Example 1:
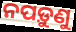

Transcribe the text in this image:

ନପଡ଼ୁଣୁ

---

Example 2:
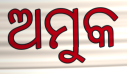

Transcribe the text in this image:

ଅମୁକ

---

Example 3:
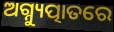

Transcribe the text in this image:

ଅଗ୍ନ୍ୟୁତ୍ପାତରେ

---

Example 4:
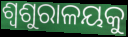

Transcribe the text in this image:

ଶ୍ୱଶୁରାଳୟକୁ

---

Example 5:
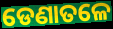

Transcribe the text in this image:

ଡେଣାତଳେ